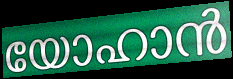
യോഹാൻ